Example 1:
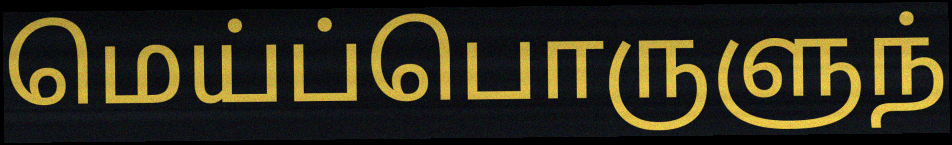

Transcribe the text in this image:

மெய்ப்பொருளுந்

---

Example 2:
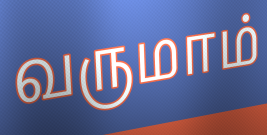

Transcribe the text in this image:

வருமாம்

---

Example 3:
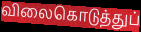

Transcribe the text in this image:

விலைகொடுத்துப்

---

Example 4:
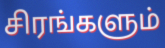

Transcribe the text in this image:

சிரங்களும்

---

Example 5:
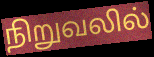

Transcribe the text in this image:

நிறுவலில்